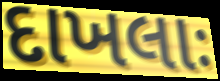
દાખલાઃ